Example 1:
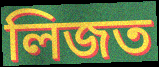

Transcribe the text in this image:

লিজত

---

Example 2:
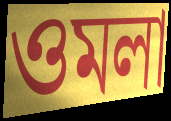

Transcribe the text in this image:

ওমলা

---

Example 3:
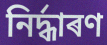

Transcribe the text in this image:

নিৰ্দ্ধাৰণ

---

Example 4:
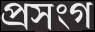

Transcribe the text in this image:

প্ৰসংগ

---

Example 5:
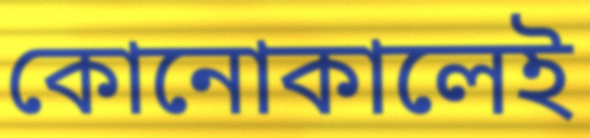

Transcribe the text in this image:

কোনোকালেই